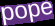
pope